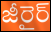
జీరైర్